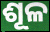
ଶୂଳ